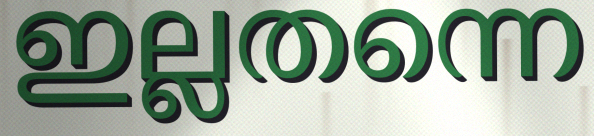
ഇല്ലതന്നെ